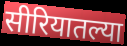
सीरियातल्या